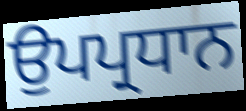
ਉਪਪ੍ਰਧਾਨ